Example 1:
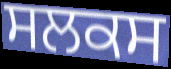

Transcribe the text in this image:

ਸਲਕਸ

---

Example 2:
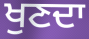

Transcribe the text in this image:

ਖੁਣਦਾ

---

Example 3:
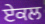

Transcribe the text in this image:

ਏਕਲ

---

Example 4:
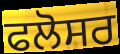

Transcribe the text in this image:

ਫਲੋਸਰ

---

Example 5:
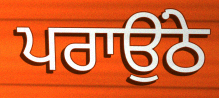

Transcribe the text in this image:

ਪਰਾਉਂਠੇ